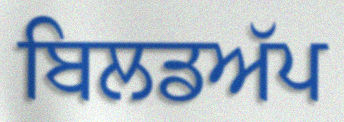
ਬਿਲਡਅੱਪ